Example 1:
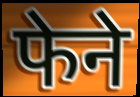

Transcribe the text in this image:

फेने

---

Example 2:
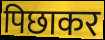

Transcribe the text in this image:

पिछाकर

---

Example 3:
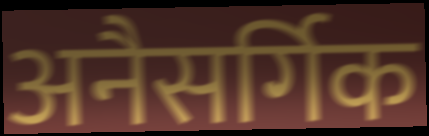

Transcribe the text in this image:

अनैसर्गिक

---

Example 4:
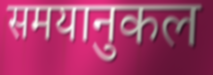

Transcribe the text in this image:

समयानुकल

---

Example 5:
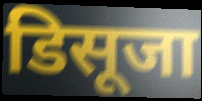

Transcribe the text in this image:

डिसूजा